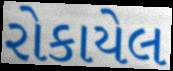
રોકાયેલ